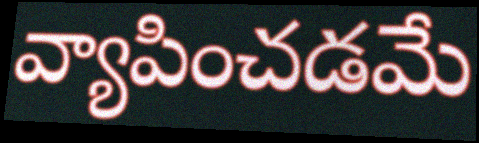
వ్యాపించడమే